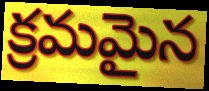
క్రమమైన